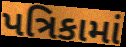
પત્રિકામાં